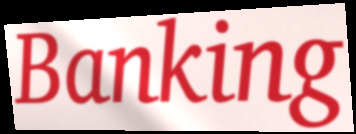
Banking